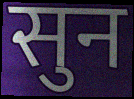
सुन